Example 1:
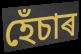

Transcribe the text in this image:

হেঁচাৰ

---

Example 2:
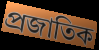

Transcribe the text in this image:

প্ৰজাতিক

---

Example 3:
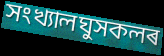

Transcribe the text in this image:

সংখ্যালঘুসকলৰ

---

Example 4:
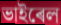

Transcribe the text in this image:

ভাইৰেল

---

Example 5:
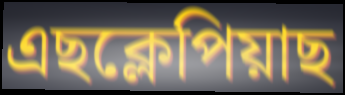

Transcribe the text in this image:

এছক্লেপিয়াছ